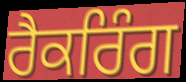
ਰੈਕਰਿੰਗ